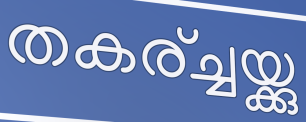
തകര്ച്ചയ്ക്കു